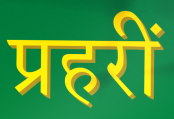
प्रहरीं